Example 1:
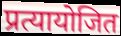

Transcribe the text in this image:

प्रत्यायोजित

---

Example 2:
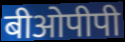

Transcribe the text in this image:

बीओपीपी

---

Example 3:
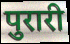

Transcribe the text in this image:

पुरारी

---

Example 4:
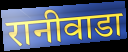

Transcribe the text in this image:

रानीवाडा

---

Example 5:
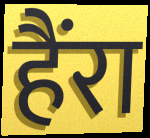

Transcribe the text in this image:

हैंरा